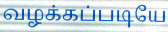
வழக்கப்படியே